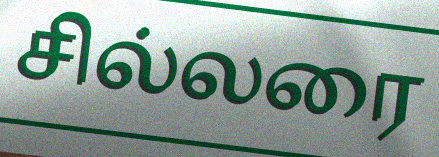
சில்லரை